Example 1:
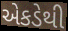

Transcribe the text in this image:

એકડેથી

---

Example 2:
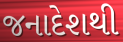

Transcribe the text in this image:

જનાદેશથી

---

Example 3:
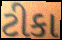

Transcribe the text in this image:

ટીકા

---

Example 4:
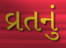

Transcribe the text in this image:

વ્રતનું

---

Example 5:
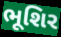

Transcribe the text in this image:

ભૂશિર